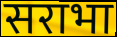
सराभा